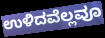
ಉಳಿದವೆಲ್ಲವೂ